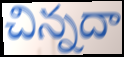
చిన్నదా